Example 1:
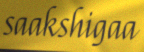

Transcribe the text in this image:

saakshigaa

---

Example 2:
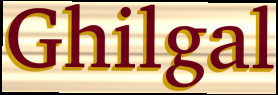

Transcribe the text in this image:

Ghilgal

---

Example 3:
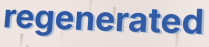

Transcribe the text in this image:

regenerated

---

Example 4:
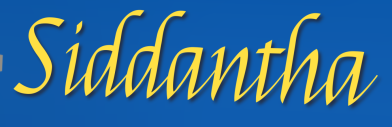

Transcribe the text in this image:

Siddantha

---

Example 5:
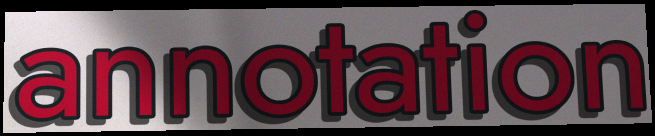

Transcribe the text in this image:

annotation